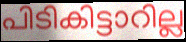
പിടികിട്ടാറില്ല